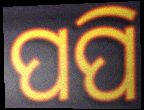
ପପି